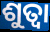
ଶୁତ୍ବା